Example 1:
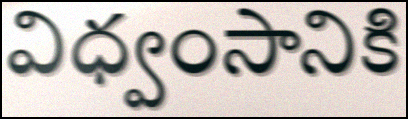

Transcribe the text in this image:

విధ్వంసానికి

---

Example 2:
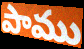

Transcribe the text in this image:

పాము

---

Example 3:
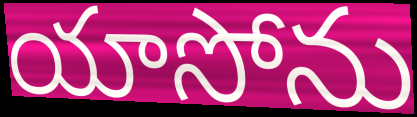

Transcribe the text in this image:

యాసోను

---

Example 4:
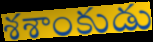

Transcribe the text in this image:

శశాంకుడు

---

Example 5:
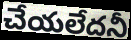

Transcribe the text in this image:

చేయలేదనీ